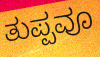
ತುಪ್ಪವೂ